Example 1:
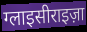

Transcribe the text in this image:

ग्लाइसीराइज़ा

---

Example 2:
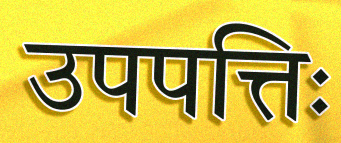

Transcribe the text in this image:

उपपत्तिः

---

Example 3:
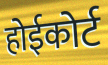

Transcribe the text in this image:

होईकोर्ट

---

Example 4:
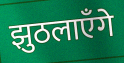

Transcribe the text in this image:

झुठलाएँगे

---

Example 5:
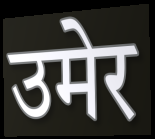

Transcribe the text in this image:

उमेर